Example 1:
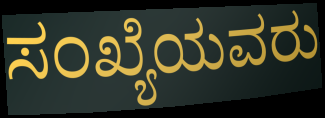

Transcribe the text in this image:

ಸಂಖ್ಯೆಯವರು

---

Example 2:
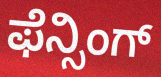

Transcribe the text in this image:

ಫೆನ್ಸಿಂಗ್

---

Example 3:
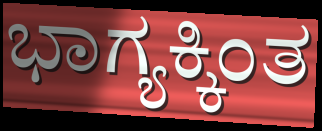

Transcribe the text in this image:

ಭಾಗ್ಯಕ್ಕಿಂತ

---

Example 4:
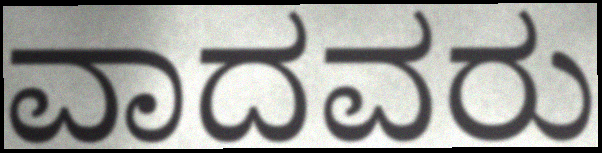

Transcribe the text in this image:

ವಾದವರು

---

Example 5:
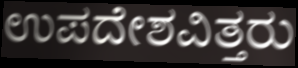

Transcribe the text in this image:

ಉಪದೇಶವಿತ್ತರು